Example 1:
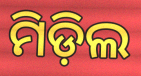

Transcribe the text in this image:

ମିଡ଼ିଲ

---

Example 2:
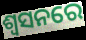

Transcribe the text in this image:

ଶ୍ଵସନରେ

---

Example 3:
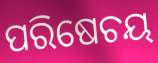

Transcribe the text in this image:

ପରିଷେଚୟ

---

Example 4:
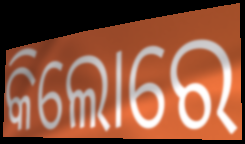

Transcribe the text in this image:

କିଲୋରେ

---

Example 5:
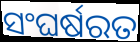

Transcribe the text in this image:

ସଂଘର୍ଷରତ